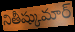
నితీష్కుమార్